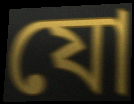
যো